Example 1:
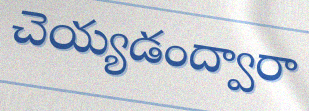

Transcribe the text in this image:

చెయ్యడంద్వారా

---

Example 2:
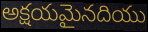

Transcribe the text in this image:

అక్షయమైనదియు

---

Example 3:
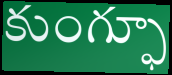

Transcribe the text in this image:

కుంగ్ఫూ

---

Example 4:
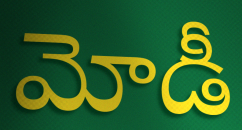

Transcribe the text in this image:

మోడీ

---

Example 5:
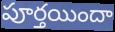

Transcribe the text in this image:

పూర్తయిందా